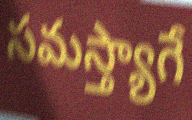
సమస్త్యాగే